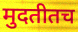
मुदतीतच